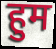
हुम